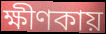
ক্ষীণকায়